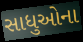
સાધુઓના